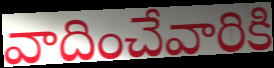
వాదించేవారికి